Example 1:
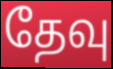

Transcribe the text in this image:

தேவு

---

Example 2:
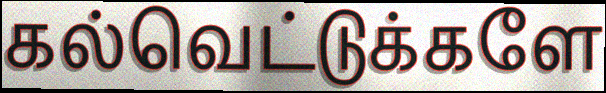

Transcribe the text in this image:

கல்வெட்டுக்களே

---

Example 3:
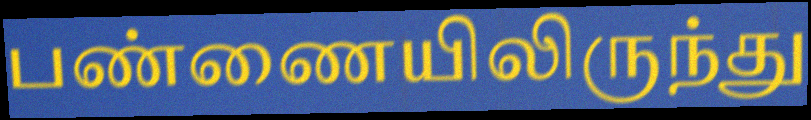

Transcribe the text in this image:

பண்ணையிலிருந்து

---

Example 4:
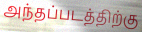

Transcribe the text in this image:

அந்தப்படத்திற்கு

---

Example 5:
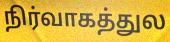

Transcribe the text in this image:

நிர்வாகத்துல